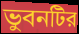
ভুবনটির